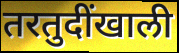
तरतुदींखाली